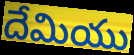
దేమియు